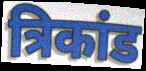
त्रिकांड